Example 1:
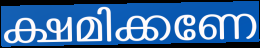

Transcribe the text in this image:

ക്ഷമിക്കണേ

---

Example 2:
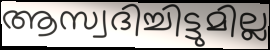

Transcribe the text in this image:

ആസ്വദിച്ചിട്ടുമില്ല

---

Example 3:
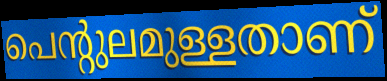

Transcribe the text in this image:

പെന്റുലമുള്ളതാണ്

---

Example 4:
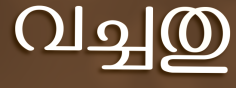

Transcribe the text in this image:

വച്ചതു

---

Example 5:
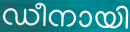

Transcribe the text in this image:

ഡീനായി